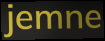
jemne